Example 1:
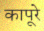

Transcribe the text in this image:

कापूरे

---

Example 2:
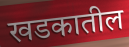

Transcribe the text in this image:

खडकातील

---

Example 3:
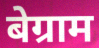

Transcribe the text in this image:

बेग्राम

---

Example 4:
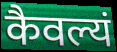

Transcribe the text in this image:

कैवल्यं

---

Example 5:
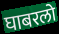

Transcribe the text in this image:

घाबरलो